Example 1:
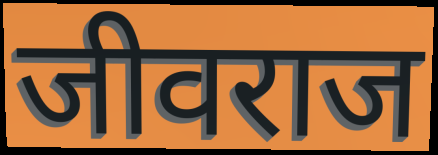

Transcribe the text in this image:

जीवराज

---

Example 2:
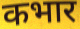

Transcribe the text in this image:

कभार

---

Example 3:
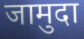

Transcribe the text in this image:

जामुदा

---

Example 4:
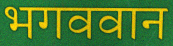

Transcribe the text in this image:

भगववान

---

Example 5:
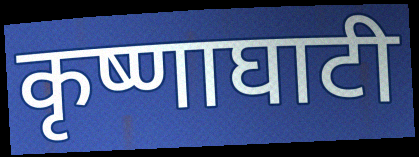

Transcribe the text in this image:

कृष्णाघाटी